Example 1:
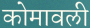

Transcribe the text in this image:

कोमावली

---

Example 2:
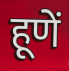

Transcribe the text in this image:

हूणें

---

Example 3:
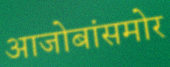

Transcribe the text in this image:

आजोबांसमोर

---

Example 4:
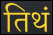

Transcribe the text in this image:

तिथं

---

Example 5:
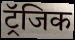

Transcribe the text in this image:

ट्रॅजिक